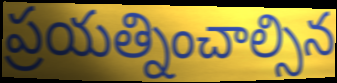
ప్రయత్నించాల్సిన